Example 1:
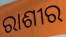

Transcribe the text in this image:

ରାଶୀର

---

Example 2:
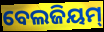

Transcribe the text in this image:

ବେଲଜିୟମ୍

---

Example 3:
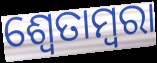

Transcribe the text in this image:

ଶ୍ୱେତାମ୍ବରା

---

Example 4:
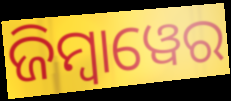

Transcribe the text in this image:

ଜିମ୍ୱାୱେର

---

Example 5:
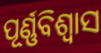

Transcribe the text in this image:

ପୂର୍ଣ୍ଣବିଶ୍ଵାସ